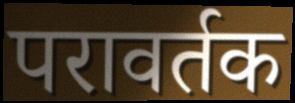
परावर्तक